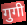
गुगी